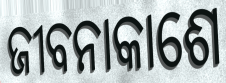
ଜୀବନାକାଶେ